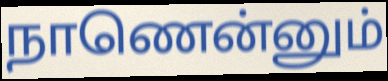
நாணென்னும்